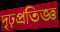
দৃঢ়প্রতিজ্ঞ